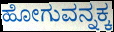
ಹೋಗುವನ್ನಕ್ಕ